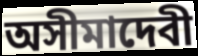
অসীমাদেবী